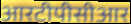
आरटीपीसीआर